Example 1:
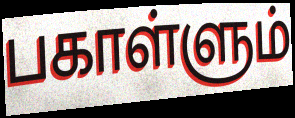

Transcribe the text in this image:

பகாள்ளும்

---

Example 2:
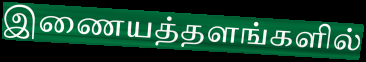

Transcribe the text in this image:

இணையத்தளங்களில்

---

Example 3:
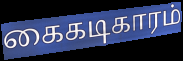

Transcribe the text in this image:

கைகடிகாரம்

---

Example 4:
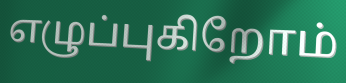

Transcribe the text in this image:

எழுப்புகிறோம்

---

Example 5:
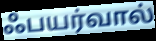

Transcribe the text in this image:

ஃபயர்வால்